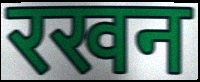
रखन